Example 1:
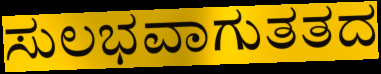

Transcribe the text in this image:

ಸುಲಭವಾಗುತತದ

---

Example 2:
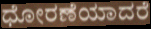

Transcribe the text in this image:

ಧೋರಣೆಯಾದರೆ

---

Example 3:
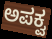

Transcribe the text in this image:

ಅಪಕ್ವ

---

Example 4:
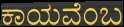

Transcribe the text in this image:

ಕಾಯವೆಂಬ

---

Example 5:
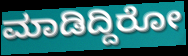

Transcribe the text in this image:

ಮಾಡಿದ್ದಿರೋ